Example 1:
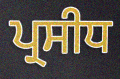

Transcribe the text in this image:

ਪ੍ਰਸੀਧ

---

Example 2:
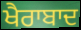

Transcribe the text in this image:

ਖੈਰਾਬਾਦ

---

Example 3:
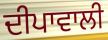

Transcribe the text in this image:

ਦੀਪਾਵਾਲੀ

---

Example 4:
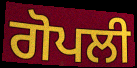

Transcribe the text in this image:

ਗੋਪਲੀ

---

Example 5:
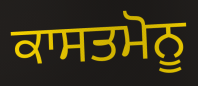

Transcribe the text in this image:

ਕਾਸਤਮੋਨੂ